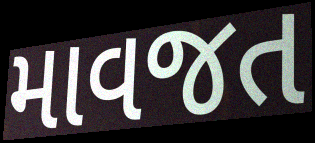
માવજત